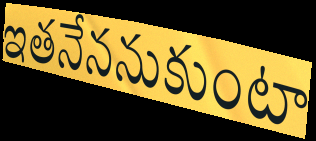
ఇతనేననుకుంటా